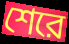
শেরে